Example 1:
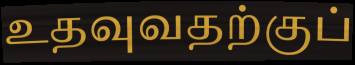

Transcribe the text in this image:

உதவுவதற்குப்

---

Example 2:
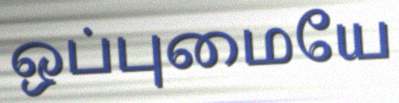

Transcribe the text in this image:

ஒப்புமையே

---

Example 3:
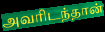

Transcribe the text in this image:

அவரிடந்தான்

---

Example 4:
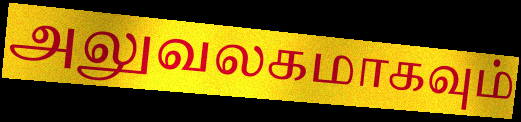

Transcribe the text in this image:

அலுவலகமாகவும்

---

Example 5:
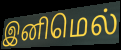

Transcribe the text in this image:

இனிமெல்